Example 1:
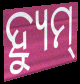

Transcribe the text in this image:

ହ୍ୟୁମ୍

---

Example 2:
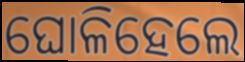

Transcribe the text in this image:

ଘୋଳିହେଲେ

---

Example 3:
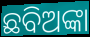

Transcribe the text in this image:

ଛବିଅଙ୍କା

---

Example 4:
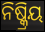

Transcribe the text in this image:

ନିଷ୍କ୍ରିୟ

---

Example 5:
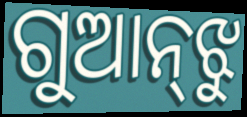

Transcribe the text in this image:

ଗୁଆନ୍‌ଝୁ